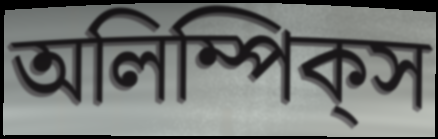
অলিম্পিক্‌স